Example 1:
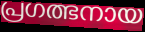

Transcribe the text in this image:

പ്രഗത്ഭനായ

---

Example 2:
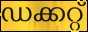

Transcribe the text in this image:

ഡക്കറ്റ്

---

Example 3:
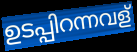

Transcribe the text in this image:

ഉടപ്പിറന്നവള്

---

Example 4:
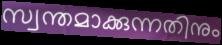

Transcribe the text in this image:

സ്വന്തമാക്കുന്നതിനും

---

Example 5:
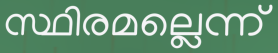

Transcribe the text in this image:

സ്ഥിരമല്ലെന്ന്